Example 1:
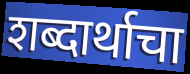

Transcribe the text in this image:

शब्दार्थाचा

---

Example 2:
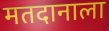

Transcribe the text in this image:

मतदानाला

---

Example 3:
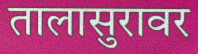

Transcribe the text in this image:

तालासुरावर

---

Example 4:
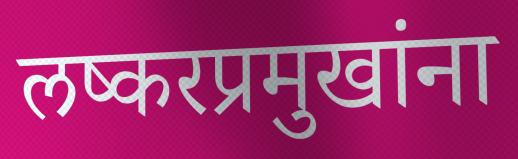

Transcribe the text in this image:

लष्करप्रमुखांना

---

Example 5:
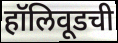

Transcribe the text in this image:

हॉलिवूडची